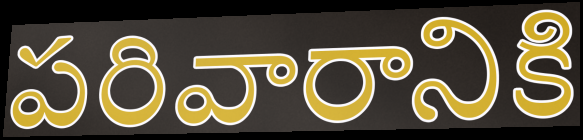
పరివారానికి